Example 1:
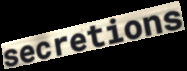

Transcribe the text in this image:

secretions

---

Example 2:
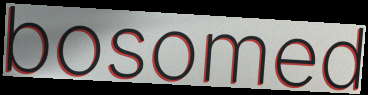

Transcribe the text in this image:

bosomed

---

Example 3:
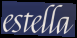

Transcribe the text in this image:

estella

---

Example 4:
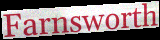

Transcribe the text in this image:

Farnsworth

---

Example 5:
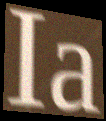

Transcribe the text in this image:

Ia